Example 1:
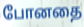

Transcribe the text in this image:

போனதை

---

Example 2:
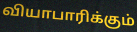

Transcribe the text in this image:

வியாபாரிக்கும்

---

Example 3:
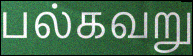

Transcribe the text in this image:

பல்கவறு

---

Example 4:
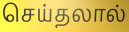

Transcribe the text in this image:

செய்தலால்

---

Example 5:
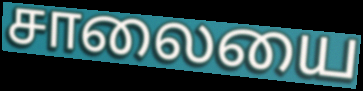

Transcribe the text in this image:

சாலையை